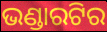
ଭଣ୍ଡାରଟିର